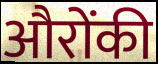
औरोंकी